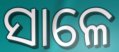
ସାଳେ